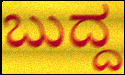
ಬುದ್ದ